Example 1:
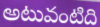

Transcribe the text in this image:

అటువంటిది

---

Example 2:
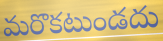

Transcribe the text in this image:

మరొకటుండదు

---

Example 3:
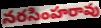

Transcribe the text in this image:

నరసింహరావు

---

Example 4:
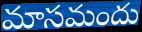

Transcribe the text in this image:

మాసమందు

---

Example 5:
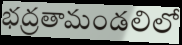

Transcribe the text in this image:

భద్రతామండలిలో